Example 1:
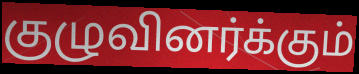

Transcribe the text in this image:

குழுவினர்க்கும்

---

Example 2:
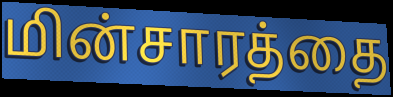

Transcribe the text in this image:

மின்சாரத்தை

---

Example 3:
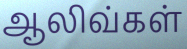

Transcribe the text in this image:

ஆலிவ்கள்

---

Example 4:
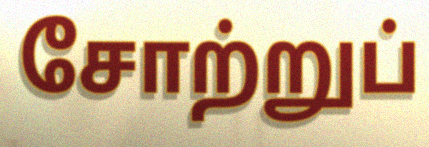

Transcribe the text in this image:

சோற்றுப்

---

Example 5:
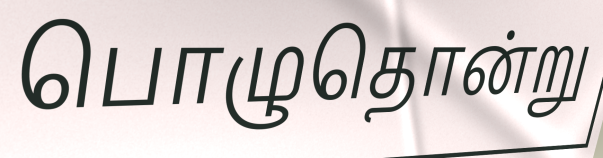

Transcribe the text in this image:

பொழுதொன்று